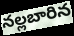
నల్లబారిన